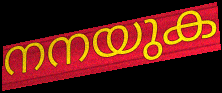
നനയുക